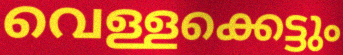
വെള്ളക്കെട്ടും